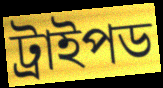
ট্রাইপড